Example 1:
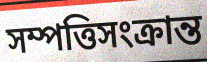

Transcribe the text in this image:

সম্পত্তিসংক্রান্ত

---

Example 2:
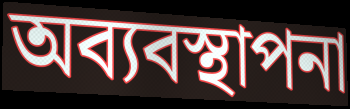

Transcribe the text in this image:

অব্যবস্থাপনা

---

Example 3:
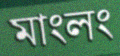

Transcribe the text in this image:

মাংলং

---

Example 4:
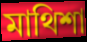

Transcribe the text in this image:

মাথিশা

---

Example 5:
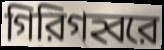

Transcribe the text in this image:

গিরিগহ্বরে